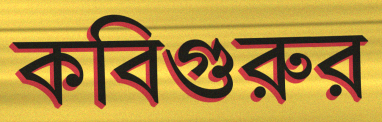
কবিগুরুর